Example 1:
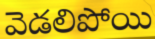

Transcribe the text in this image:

వెడలిపోయి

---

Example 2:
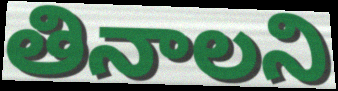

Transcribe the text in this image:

తినాలని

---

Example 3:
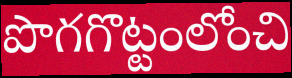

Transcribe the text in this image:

పొగగొట్టంలోంచి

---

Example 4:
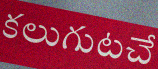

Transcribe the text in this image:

కలుగుటచే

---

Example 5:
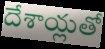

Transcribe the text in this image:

దేశాయ్లతో